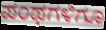
ಪಂಥಗಳಿಗೂ